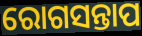
ରୋଗସନ୍ତାପ